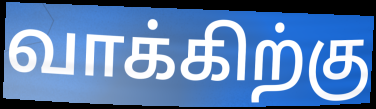
வாக்கிற்கு